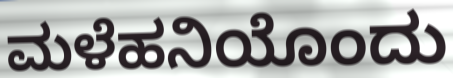
ಮಳೆಹನಿಯೊಂದು